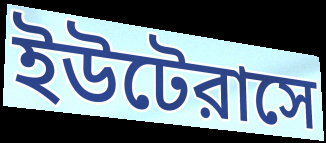
ইউটেরাসে